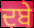
ਦਬੇ